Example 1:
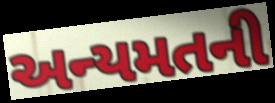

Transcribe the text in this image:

અન્યમતની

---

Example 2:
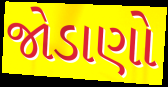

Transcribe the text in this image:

જોડાણો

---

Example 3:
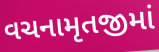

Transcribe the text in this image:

વચનામૃતજીમાં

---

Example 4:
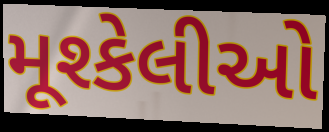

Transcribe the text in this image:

મૂશ્કેલીઓ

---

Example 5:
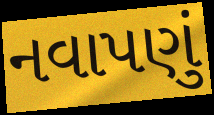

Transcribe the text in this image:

નવાપણું